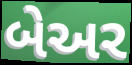
બેઅર